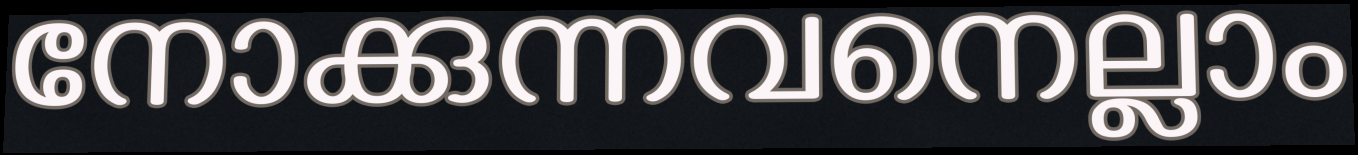
നോക്കുന്നവനെല്ലാം